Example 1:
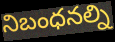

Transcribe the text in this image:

నిబంధనల్ని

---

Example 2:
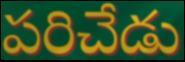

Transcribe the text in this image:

పరిచేడు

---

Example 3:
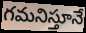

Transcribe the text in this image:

గమనిస్తూనే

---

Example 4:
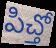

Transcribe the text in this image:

పిచ్తో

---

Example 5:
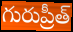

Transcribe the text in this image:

గురుప్రీత్